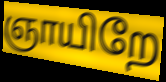
ஞாயிறே